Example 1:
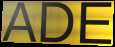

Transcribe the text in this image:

ADE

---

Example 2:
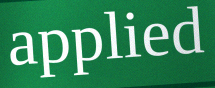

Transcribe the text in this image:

applied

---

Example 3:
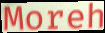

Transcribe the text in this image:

Moreh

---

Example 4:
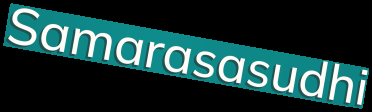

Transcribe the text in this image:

Samarasasudhi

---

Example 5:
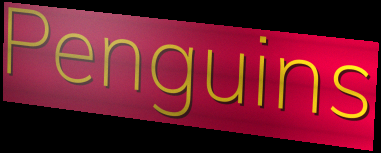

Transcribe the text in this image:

Penguins